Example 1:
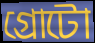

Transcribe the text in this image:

গ্রোটো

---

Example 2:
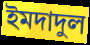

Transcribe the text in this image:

ইমদাদুল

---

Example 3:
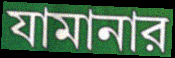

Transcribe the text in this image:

যামানার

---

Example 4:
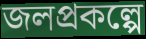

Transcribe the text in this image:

জলপ্রকল্পে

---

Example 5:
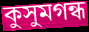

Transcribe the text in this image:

কুসুমগন্ধ